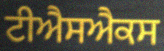
ਟੀਐਸਐਕਸ